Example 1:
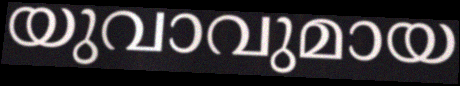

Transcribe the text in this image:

യുവാവുമായ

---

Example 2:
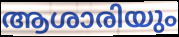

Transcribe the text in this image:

ആശാരിയും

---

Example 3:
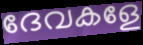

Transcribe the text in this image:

ദേവകളേ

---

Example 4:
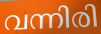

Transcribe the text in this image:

വന്നിരി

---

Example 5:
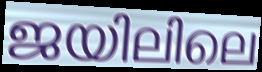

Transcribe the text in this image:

ജയിലിലെ